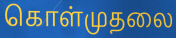
கொள்முதலை